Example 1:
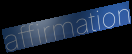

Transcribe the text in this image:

affirmation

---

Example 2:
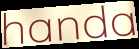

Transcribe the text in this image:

handa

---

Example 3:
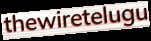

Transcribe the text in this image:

thewiretelugu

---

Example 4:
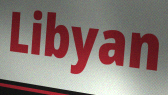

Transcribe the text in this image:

Libyan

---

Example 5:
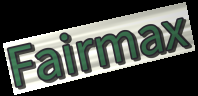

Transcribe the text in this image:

Fairmax